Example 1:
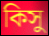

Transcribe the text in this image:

কিসু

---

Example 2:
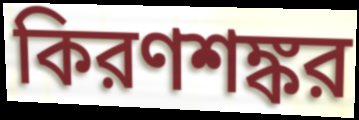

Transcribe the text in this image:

কিরণশঙ্কর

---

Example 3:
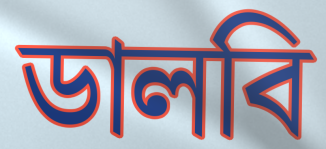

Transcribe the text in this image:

ডালবি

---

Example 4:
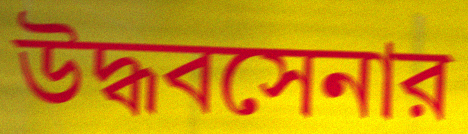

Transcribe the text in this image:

উদ্ধবসেনার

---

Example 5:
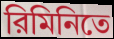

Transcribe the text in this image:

রিমিনিতে